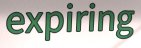
expiring